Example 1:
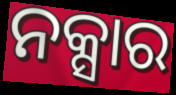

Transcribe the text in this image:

ନକ୍ସାର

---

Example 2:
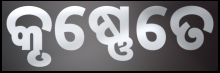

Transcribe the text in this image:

କୃଷ୍ଣେତେ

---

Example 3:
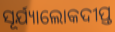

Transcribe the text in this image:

ସୂର୍ଯ୍ୟାଲୋକଦୀପ୍ତ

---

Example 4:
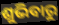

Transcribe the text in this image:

ଶୁଭିବାରୁ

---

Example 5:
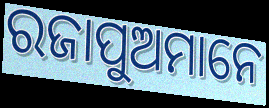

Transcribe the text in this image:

ରଜାପୁଅମାନେ